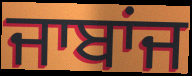
ਜਾਬਾਂਜ